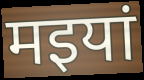
मइयां